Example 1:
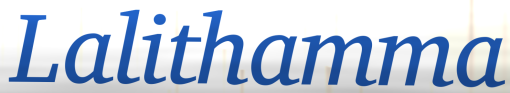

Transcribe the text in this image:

Lalithamma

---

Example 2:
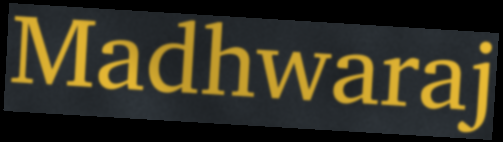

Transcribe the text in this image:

Madhwaraj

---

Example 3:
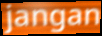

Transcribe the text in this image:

jangan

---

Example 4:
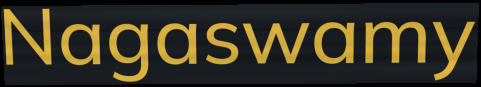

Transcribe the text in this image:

Nagaswamy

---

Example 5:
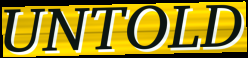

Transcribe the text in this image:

UNTOLD